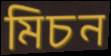
মিচন